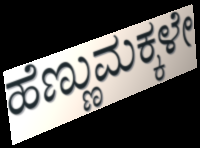
ಹೆಣ್ಣುಮಕ್ಕಳೇ